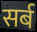
सर्ब